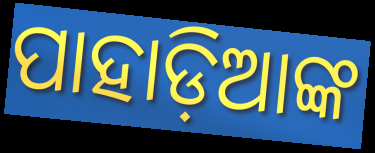
ପାହାଡ଼ିଆଙ୍କ